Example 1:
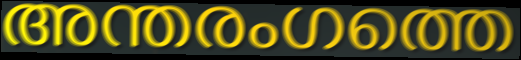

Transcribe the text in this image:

അന്തരംഗത്തെ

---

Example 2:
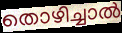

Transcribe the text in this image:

തൊഴിച്ചാൽ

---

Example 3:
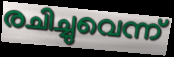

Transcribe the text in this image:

രചിച്ചുവെന്ന്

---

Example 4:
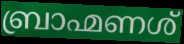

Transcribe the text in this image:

ബ്രാഹ്മണശ്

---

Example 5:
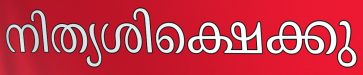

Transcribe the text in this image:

നിത്യശിക്ഷെക്കു